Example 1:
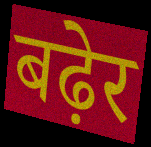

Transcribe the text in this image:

बढ़ेर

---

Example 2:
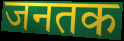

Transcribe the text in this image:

जनतक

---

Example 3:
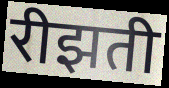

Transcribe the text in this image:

रीझती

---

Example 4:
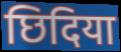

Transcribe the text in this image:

छिदिया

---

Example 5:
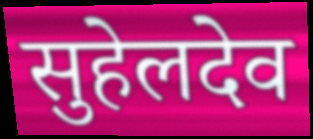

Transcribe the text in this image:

सुहेलदेव